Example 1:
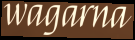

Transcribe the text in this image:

wagarna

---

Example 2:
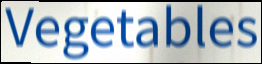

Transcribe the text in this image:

Vegetables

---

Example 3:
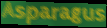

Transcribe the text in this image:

Asparagus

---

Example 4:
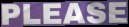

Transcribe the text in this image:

PLEASE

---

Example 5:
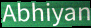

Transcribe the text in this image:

Abhiyan